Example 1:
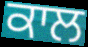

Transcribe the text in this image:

ਕਾਲ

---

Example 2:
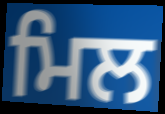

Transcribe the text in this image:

ਮਿਲ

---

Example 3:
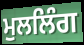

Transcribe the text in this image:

ਮੁਲਲਿੰਗ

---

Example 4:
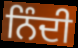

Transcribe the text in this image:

ਨਿੰਦੀ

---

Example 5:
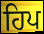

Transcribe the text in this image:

ਹਿਪ